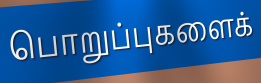
பொறுப்புகளைக்